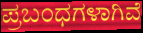
ಪ್ರಬಂಧಗಳಾಗಿವೆ